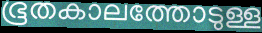
ഭൂതകാലത്തോടുള്ള